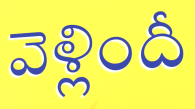
వెళ్లిందీ